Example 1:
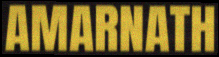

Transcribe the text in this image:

AMARNATH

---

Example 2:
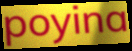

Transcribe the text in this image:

poyina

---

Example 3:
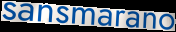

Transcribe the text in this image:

sansmarano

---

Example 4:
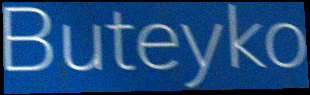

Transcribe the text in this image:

Buteyko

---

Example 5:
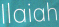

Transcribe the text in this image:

Ilaiah